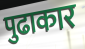
पुढाकार